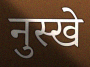
नुस्खे